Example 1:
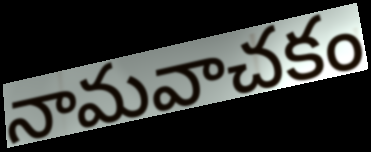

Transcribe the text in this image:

నామవాచకం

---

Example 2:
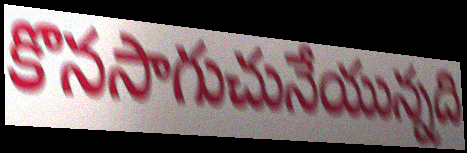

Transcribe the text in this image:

కొనసాగుచునేయున్నది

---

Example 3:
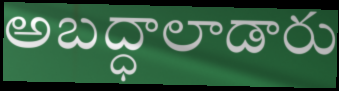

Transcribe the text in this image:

అబద్ధాలాడారు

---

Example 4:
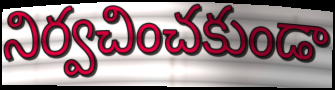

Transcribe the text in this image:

నిర్వచించకుండా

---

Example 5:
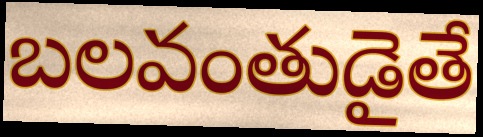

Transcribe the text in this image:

బలవంతుడైతే